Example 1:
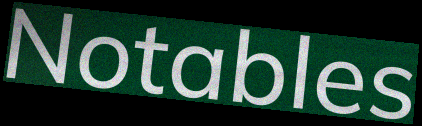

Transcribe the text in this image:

Notables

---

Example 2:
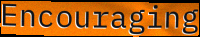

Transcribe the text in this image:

Encouraging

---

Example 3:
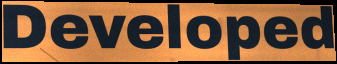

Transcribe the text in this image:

Developed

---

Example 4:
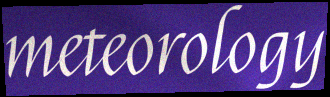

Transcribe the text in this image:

meteorology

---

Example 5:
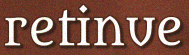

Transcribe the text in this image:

retinue